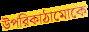
উপরিকাঠামোকে